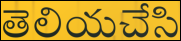
తెలియచేసి